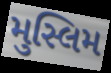
મુસ્લિમ